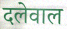
दलेवाल